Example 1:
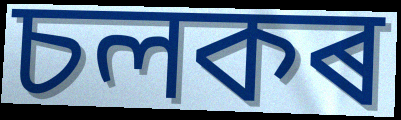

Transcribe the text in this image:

চলকৰ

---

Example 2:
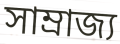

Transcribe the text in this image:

সাম্ৰাজ্য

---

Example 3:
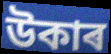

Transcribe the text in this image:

উকাৰ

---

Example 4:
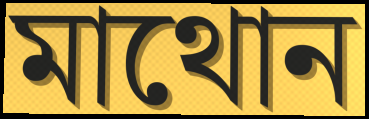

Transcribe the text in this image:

মাথোন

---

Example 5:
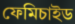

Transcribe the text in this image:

ফেমিচাইড